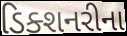
ડિક્શનરીના